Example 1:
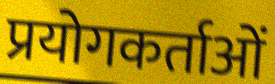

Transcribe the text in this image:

प्रयोगकर्ताओं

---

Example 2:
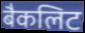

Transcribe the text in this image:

बैकलिट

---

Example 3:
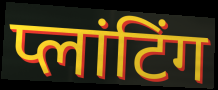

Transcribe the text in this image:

प्लांटिंग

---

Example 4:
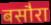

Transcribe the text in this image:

बसौरा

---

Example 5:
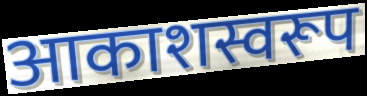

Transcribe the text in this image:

आकाशस्वरूप